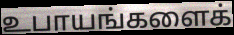
உபாயங்களைக்